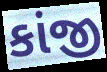
કાંજી